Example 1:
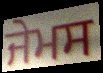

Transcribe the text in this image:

ਜੇਮਸ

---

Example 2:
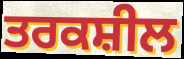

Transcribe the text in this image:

ਤਰਕਸ਼ੀਲ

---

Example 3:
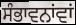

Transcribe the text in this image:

ਸੰਭਾਵਨਾਂਵਾਂ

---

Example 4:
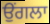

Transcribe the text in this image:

ਉਂਗਲਾ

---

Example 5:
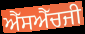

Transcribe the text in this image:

ਐੱਸਐੱਚਜੀ